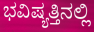
ಭವಿಷ್ಯತ್ತಿನಲ್ಲಿ